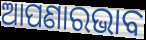
ଆପଣାରଭାବ